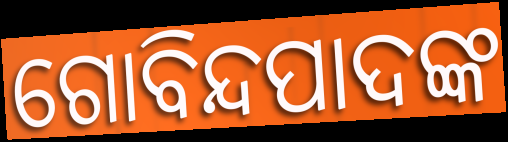
ଗୋବିନ୍ଦପାଦଙ୍କ